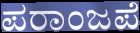
ಪರಾಂಜಪೆ